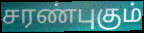
சரண்புகும்